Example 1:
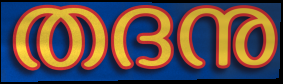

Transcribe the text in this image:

തദനു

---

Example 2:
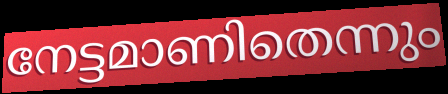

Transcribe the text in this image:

നേട്ടമാണിതെന്നും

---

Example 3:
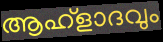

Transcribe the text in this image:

ആഹ്ളാദവും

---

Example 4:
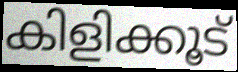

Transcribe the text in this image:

കിളിക്കൂട്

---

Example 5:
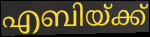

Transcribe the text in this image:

എബിയ്ക്ക്